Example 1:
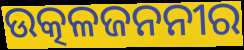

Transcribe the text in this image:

ଉତ୍କଳଜନନୀର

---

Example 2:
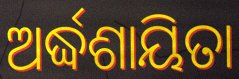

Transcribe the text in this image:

ଅର୍ଦ୍ଧଶାୟିତା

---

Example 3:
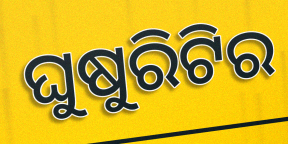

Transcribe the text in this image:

ଘୁଷୁରିଟିର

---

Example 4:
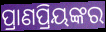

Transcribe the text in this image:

ପ୍ରାଣପ୍ରିୟଙ୍କର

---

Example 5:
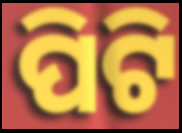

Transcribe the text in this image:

ପିଟି